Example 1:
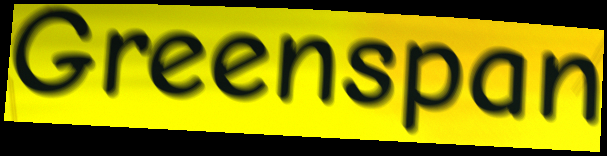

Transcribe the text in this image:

Greenspan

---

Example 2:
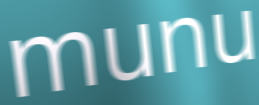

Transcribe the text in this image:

munu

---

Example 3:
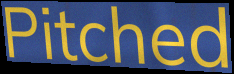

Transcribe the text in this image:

Pitched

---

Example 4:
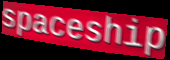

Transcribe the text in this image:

spaceship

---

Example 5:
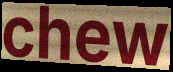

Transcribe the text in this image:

chew